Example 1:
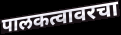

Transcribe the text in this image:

पालकत्वावरचा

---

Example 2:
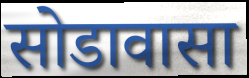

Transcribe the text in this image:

सोडावासा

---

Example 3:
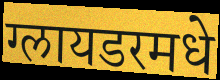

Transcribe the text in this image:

ग्लायडरमधे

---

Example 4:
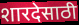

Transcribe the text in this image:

शारदेसाठी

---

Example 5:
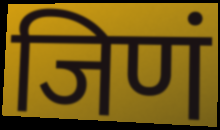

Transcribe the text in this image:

जिणं